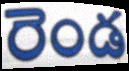
రెండ